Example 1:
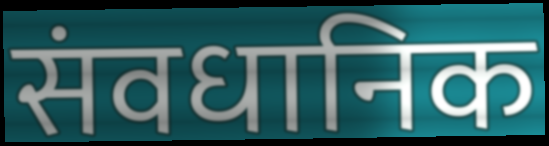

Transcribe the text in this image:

संवधानिक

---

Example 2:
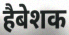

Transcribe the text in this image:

हैबेशक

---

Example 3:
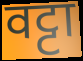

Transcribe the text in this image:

वट्टा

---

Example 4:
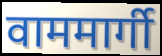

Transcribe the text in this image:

वाममार्गी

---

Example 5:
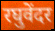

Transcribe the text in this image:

रघुवेंदर